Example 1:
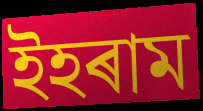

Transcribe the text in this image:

ইহৰাম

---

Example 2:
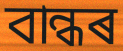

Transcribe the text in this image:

বান্ধৰ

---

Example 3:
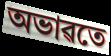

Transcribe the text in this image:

অভাৱতে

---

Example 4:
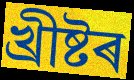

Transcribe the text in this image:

খ্ৰীষ্টৰ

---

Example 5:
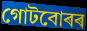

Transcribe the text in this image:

গোটবোৰৰ